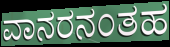
ವಾನರನಂತಹ